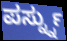
ಪರ್ಸ್ನ್ನು